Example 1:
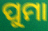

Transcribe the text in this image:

ପୁମା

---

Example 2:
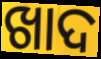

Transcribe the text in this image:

ଖାଦ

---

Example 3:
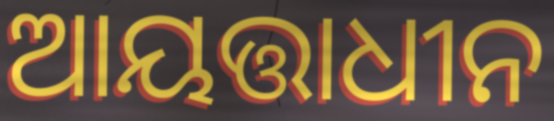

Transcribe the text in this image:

ଆୟତ୍ତାଧୀନ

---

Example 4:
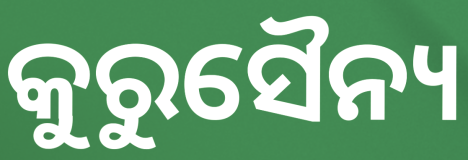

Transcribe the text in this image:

କୁରୁସୈନ୍ୟ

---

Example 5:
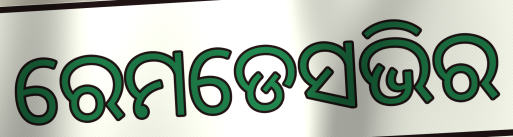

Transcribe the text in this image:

ରେମଡେସଭିର